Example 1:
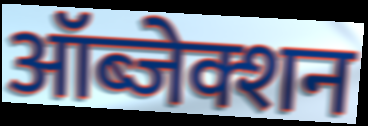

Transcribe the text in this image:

ऑब्‍जेक्‍शन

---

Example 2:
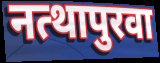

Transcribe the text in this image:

नत्थापुरवा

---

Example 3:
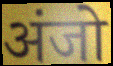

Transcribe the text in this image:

अंजो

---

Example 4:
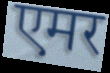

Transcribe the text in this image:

एमर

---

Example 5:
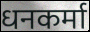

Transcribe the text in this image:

धनकर्मा